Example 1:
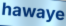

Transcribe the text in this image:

hawaye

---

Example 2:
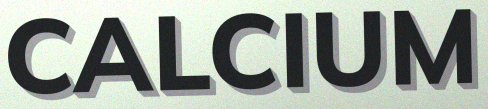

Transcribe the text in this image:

CALCIUM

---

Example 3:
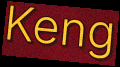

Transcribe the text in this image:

Keng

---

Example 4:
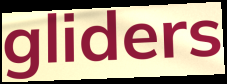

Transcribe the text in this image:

gliders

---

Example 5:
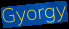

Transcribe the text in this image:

Gyorgy